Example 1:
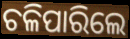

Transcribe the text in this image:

ଚଳିପାରିଲେ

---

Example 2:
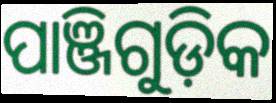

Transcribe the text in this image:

ପାଞ୍ଜିଗୁଡ଼ିକ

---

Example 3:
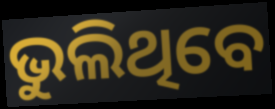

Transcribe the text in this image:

ଭୁଲିଥିବେ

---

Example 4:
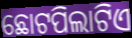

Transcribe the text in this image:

ଛୋଟପିଲାଟିଏ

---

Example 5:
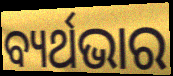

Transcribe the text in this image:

ବ୍ୟର୍ଥଭାର